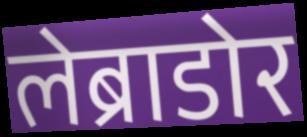
लेब्राडोर